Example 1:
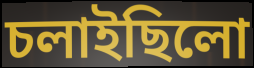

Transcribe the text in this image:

চলাইছিলো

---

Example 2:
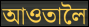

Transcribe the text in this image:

আওতালৈ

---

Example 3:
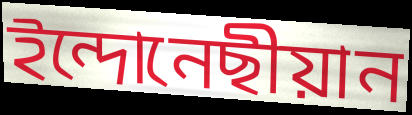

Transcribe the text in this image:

ইন্দোনেছীয়ান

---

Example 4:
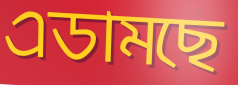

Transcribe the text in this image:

এডামছে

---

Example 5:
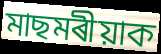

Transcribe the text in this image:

মাছমৰীয়াক